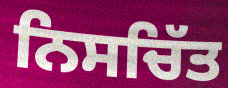
ਨਿਸਚਿੱਤ